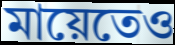
মায়েতেও